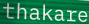
thakare